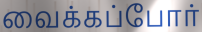
வைக்கப்போர்